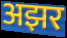
अझर